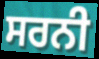
ਸਰਨੀ